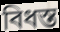
বিধস্ত